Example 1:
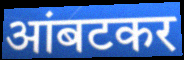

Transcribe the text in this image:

आंबटकर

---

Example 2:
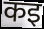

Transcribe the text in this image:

कइ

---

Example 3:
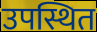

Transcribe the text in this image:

उपस्थित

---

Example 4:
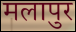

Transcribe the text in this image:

मलापुर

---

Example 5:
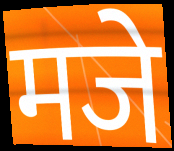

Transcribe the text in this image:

मजे